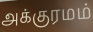
அக்குரமம்